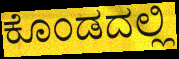
ಕೊಂಡದಲ್ಲಿ